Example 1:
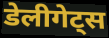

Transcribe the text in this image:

डेलीगेट्स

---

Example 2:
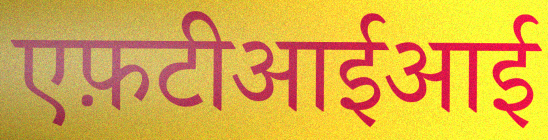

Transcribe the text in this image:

एफ़टीआईआई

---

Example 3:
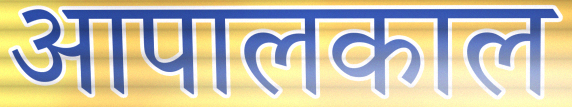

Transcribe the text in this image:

आपालकाल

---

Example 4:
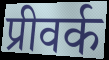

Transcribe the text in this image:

प्रीवर्क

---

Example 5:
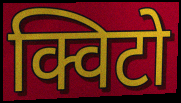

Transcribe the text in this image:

क्विटो